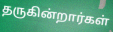
தருகின்றார்கள்